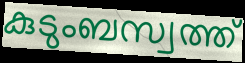
കുടുംബസ്വത്ത്